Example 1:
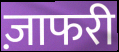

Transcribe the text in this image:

ज़ाफरी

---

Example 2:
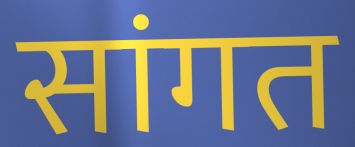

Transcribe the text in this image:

सांगत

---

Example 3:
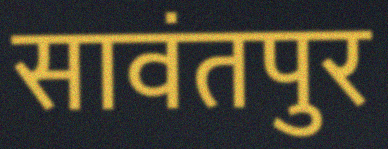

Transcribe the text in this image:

सावंतपुर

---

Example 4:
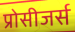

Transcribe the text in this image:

प्रोसीजर्स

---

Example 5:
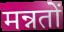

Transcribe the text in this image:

मन्नतों